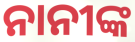
ନାନୀଙ୍କ